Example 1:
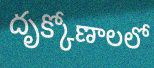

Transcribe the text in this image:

దృక్కోణాలలో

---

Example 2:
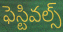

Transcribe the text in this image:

ఫెస్టివల్స్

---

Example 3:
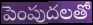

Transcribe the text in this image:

పెంపుదలతో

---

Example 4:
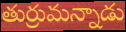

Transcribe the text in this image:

తుర్రుమన్నాడు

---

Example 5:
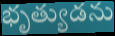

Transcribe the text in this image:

భృత్యుడను